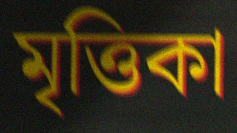
মৃত্তিকা